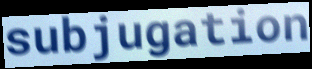
subjugation